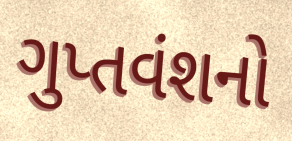
ગુપ્તવંશનો